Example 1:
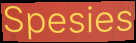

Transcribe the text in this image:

Spesies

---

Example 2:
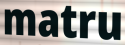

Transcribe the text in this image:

matru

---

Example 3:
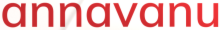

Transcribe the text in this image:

annavanu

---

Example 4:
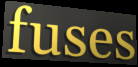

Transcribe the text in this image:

fuses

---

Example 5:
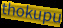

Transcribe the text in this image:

thokupu